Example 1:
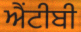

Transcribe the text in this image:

ਐਂਟੀਬੀ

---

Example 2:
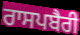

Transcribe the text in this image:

ਰਾਸਪਬੈਰੀ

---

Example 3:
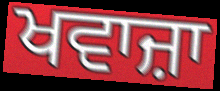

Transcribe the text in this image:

ਖਵਾਜ਼ਾ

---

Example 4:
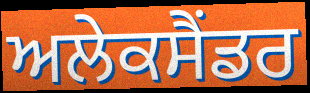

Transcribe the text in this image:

ਅਲੇਕਸੈਂਡਰ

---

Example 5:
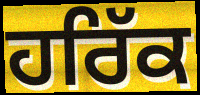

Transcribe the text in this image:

ਹਰਿੱਕ